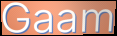
Gaam